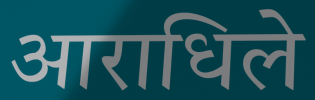
आराधिले